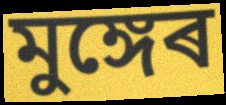
মুঙ্গেৰ